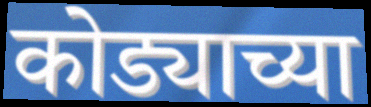
कोड्याच्या